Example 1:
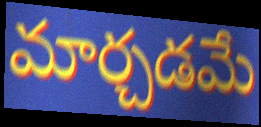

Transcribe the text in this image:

మార్చడమే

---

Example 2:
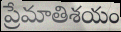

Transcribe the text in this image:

ప్రేమాతిశయం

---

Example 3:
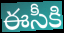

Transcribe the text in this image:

ఈసీకి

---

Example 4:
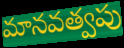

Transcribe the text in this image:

మానవత్వపు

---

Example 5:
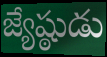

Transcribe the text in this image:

జ్యేష్ఠుడు